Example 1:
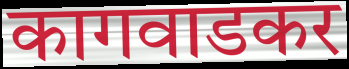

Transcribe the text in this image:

कागवाडकर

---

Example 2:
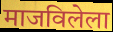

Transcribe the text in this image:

माजविलेला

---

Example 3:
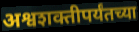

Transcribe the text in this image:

अश्वशक्तीपर्यंतच्या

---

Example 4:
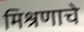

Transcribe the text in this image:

मिश्रणाचे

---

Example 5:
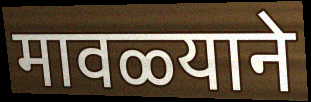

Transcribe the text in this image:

मावळ्याने